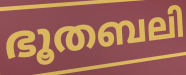
ഭൂതബലി